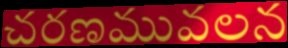
చరణమువలన